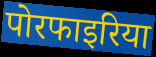
पोरफाइरिया